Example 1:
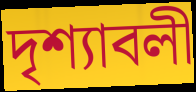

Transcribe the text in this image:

দৃশ্যাবলী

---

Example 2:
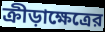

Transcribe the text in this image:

ক্রীড়াক্ষেত্রের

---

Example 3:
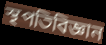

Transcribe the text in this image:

স্থপতিবিজ্ঞান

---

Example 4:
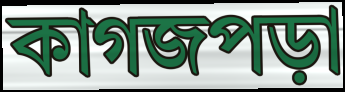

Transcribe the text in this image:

কাগজপড়া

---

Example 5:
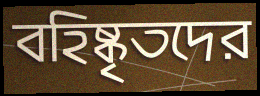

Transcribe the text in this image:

বহিষ্কৃতদের